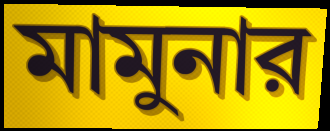
মামুনার